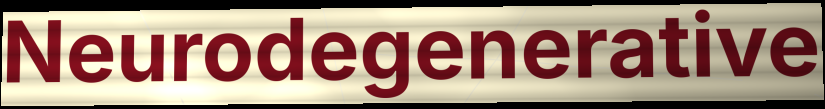
Neurodegenerative